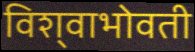
विश्वाभोवती